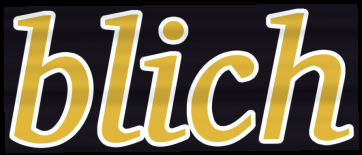
blich